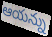
ఆయన్ను